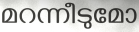
മറന്നീടുമോ